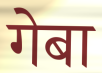
गेबा